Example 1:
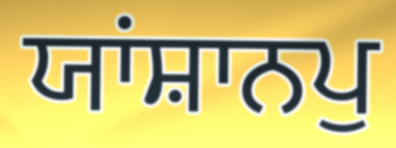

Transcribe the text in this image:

ਯਾਂਸ਼ਾਨਪੁ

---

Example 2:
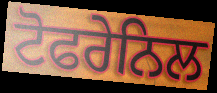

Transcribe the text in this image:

ਟੋਫਰੇਨਿਲ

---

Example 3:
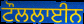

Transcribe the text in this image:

ਟੌਲਲਾਈਨ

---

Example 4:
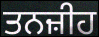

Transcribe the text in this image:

ਤਨਜ਼ੀਹ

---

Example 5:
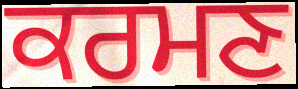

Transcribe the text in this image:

ਕਰਮਣ